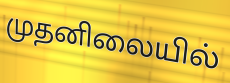
முதனிலையில்